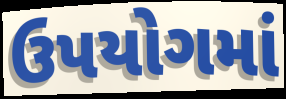
ઉપયોગમાં